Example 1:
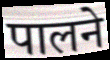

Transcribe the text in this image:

पालने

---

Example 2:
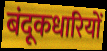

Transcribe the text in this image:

बंदूकधारियों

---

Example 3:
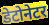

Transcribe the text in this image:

डेटोनेटर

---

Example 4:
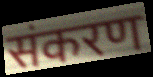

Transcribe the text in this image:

संकरण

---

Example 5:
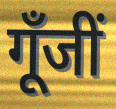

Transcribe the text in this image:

गूँजीं